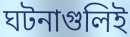
ঘটনাগুলিই